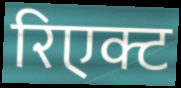
रिएक्ट